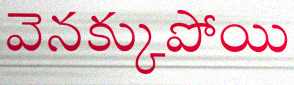
వెనక్కుపోయి